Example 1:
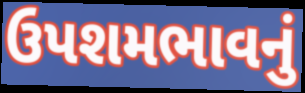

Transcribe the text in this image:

ઉપશમભાવનું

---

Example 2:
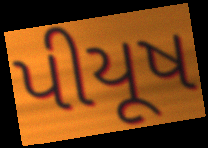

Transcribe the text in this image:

પીયૂષ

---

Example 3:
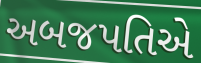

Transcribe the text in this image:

અબજપતિએ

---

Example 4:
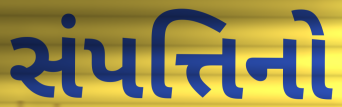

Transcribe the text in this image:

સંપત્તિનો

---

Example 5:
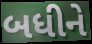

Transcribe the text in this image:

બધીને